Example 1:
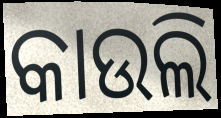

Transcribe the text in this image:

କାଉଲି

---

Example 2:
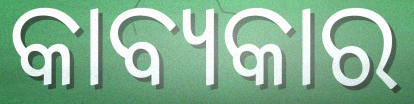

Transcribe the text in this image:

କାବ୍ୟକାର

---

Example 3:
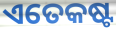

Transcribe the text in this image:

ଏତେକଷ୍ଟ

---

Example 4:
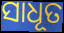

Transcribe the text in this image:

ସାଧୂତ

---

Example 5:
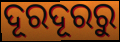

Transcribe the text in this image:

ଦୂରଦୂରରୁ